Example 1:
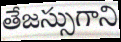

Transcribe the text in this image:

తేజస్సుగాని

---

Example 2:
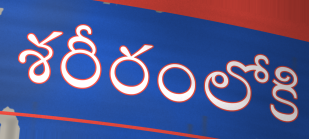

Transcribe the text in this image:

శరీరంలోకి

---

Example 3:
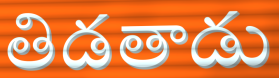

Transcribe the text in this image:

తిడతాడు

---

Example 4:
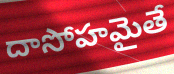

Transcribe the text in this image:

దాసోహమైతే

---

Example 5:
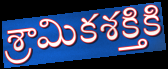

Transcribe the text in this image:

శ్రామికశక్తికి